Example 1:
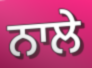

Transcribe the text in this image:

ਨਾਲੇ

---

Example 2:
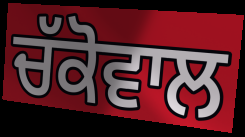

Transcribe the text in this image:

ਚੱਕੋਵਾਲ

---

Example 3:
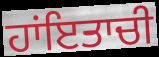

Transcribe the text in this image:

ਹਾਂਇਤਾਚੀ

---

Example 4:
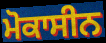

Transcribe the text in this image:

ਮੋਕਾਸੀਨ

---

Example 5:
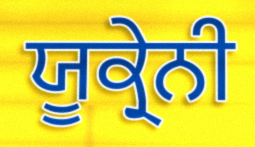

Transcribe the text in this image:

ਯੂਕ੍ਰੇਨੀ